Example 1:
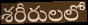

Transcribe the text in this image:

శరీరులలో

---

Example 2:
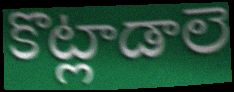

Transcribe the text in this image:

కొట్లాడాలె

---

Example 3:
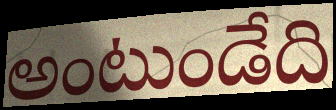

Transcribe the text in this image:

అంటుండేది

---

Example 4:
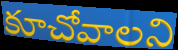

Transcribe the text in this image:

కూచోవాలని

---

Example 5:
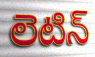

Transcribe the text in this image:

లెటిన్